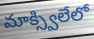
మాక్స్విలేలో